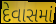
દેવાસમાં